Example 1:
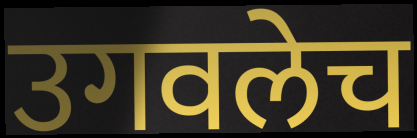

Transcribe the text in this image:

उगवलेच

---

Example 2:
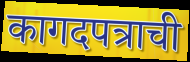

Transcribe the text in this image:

कागदपत्राची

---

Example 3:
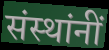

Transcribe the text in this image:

संस्थांनीं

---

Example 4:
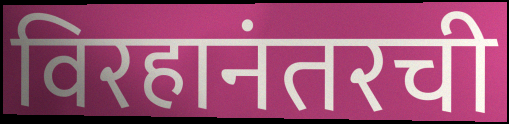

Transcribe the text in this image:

विरहानंतरची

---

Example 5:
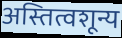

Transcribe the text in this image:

अस्तित्वशून्य